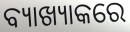
ବ୍ୟାଖ୍ୟାକରେ